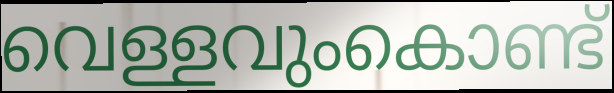
വെള്ളവുംകൊണ്ട്